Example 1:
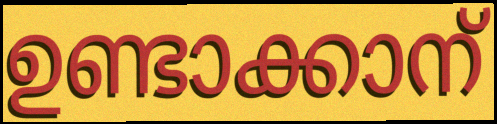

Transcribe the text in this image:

ഉണ്ടാക്കാന്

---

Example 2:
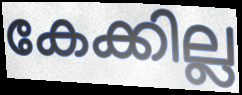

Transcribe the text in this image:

കേക്കില്ല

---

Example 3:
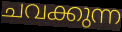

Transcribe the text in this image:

ചവക്കുന്ന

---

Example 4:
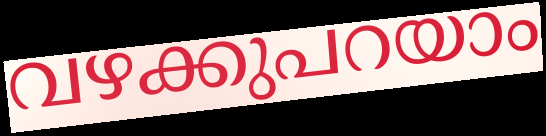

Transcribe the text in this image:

വഴക്കുപറയാം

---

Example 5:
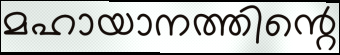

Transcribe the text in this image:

മഹായാനത്തിന്റെ